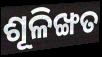
ଶୂଳିଙ୍ଖତ